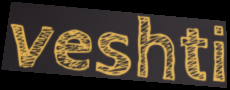
veshti